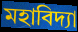
মহাবিদ্যা